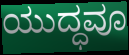
ಯುದ್ಧವೂ